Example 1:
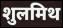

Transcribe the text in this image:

शुलमिथ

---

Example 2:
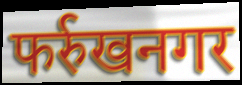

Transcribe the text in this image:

फर्रुखनगर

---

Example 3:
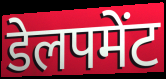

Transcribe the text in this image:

डेलपमेंट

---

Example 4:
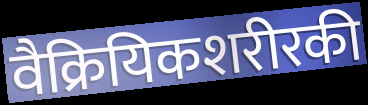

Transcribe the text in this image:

वैक्रियिकशरीरकी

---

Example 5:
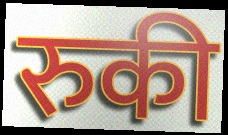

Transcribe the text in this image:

रुकी